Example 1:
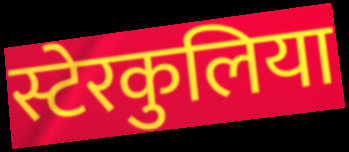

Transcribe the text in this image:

स्टेरकुलिया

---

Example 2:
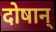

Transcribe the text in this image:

दोषान्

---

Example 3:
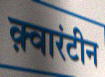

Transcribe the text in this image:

क़्वारंटीन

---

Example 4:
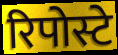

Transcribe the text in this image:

रिपोस्टे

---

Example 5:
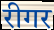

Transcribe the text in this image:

रीगर